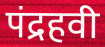
पंद्रहवी